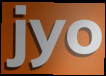
jyo